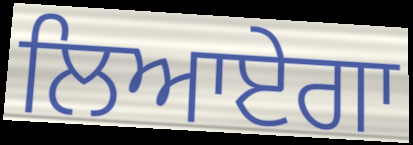
ਲਿਆਏਗਾ